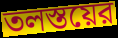
তলস্তয়ের